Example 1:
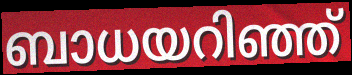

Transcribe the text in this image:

ബാധയറിഞ്ഞ്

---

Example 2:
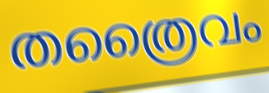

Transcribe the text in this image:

തത്രൈവം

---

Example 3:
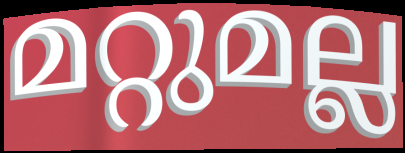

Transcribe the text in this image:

മറ്റുമല്ല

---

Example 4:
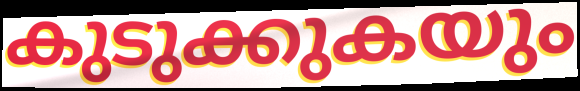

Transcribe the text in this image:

കുടുക്കുകയും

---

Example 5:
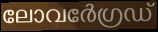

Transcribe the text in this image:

ലോവർേഗ്രഡ്